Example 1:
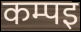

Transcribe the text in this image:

कम्पइ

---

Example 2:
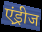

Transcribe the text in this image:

एंड्रीज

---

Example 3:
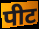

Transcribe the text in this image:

पीट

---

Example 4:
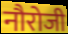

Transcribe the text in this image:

नौरोजी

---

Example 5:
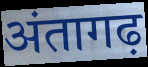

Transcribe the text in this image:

अंतागढ़